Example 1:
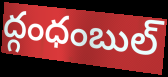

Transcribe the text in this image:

ద్గంధంబుల్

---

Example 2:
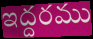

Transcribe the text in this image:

ఇద్దరము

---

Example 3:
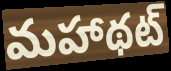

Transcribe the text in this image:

మహాథట్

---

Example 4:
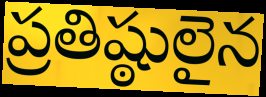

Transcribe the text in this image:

ప్రతిష్ఠులైన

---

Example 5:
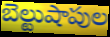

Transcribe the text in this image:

బెల్టుషాపుల